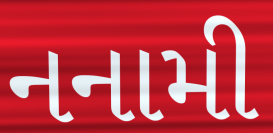
નનામી